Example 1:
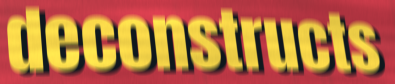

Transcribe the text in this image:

deconstructs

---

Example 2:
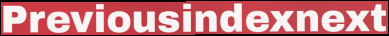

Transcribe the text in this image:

Previousindexnext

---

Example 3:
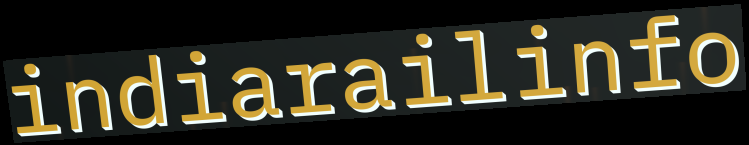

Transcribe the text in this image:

indiarailinfo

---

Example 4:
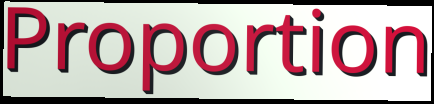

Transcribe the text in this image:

Proportion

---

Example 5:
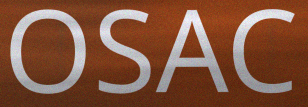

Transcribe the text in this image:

OSAC